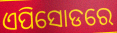
ଏପିସୋଡରେ